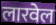
लारवेल